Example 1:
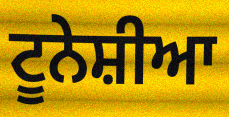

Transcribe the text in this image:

ਟੂਨੇਸ਼ੀਆ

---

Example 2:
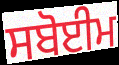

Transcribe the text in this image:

ਸਬੋਈਮ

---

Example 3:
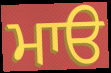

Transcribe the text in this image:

ਮਾੳ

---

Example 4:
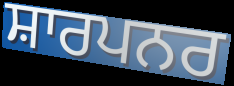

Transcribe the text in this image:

ਸ਼ਾਰਪਨਰ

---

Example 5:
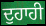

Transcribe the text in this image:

ਦੁਹਾਹੀ